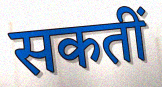
सकतीं